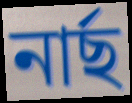
নাৰ্ছ